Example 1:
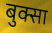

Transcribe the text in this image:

बुक्सा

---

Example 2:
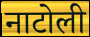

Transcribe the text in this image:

नाटोली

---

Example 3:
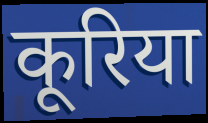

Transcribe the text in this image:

कूरिया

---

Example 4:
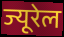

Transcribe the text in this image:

ज्यूरेल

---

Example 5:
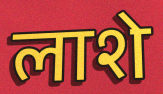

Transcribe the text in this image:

लाशे